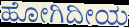
ಹೋಗಿದೀಯ